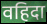
वहिदा